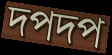
দপদপ